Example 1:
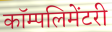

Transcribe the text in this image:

कॉम्पलिमेंटरी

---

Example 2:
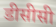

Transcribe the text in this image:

डीसीसी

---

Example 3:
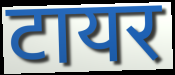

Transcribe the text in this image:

टायर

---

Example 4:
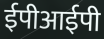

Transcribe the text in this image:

ईपीआईपी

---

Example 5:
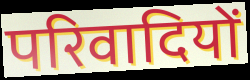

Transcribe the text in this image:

परिवादियों